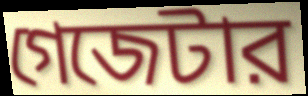
গেজেটার